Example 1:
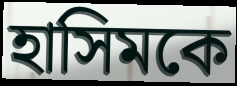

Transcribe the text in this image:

হাসিমকে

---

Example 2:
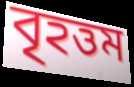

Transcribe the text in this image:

বৃহত্তম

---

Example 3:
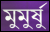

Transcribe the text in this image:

মুমুর্ষু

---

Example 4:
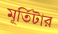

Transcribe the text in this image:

মূর্তিটার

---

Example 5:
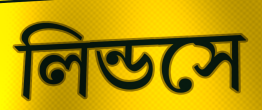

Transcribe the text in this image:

লিন্ডসে